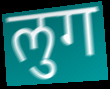
लुग